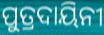
ପୁତ୍ରଦାୟିନୀ